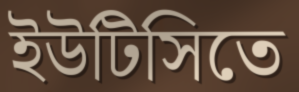
ইউটিসিতে